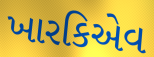
ખારકિએવ